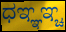
ಧಞ್ಞಞ್ಚ